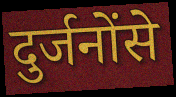
दुर्जनोंसे